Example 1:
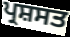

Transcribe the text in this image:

ਪ੍ਰਸ਼ਸਤ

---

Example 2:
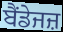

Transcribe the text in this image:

ਬੈਂਡੇਜਜ਼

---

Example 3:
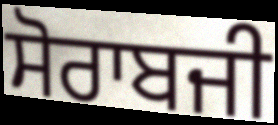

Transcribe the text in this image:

ਸੋਰਾਬਜੀ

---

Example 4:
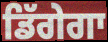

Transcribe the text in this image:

ਡਿੱਗੇਗਾ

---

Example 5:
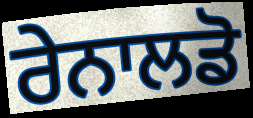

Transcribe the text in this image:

ਰੇਨਾਲਡੋ